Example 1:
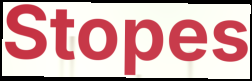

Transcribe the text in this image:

Stopes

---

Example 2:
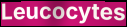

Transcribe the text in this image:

Leucocytes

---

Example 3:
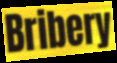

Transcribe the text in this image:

Bribery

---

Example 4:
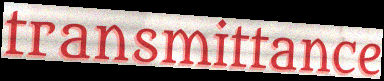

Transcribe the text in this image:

transmittance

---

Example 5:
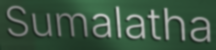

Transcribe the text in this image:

Sumalatha